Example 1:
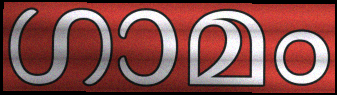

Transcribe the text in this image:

ഗാമം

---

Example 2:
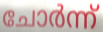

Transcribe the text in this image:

ചോർന്ന്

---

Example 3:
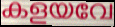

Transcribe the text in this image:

കളയവേ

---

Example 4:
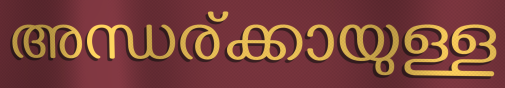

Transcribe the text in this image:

അന്ധര്ക്കായുള്ള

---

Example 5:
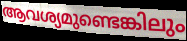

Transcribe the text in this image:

ആവശ്യമുണ്ടെങ്കിലും